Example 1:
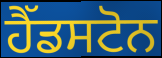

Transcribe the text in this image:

ਹੈੱਡਸਟੋਨ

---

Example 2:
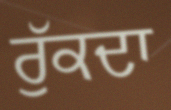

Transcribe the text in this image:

ਰੁੱਕਦਾ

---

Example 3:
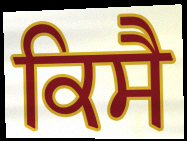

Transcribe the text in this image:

ਕਿਸੈ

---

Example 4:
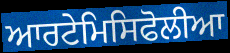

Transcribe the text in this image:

ਆਰਟੇਮਿਸਿਫੋਲੀਆ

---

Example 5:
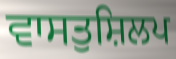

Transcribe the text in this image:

ਵਾਸਤੁਸ਼ਿਲਪ